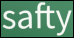
safty